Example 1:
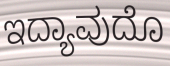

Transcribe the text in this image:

ಇದ್ಯಾವುದೊ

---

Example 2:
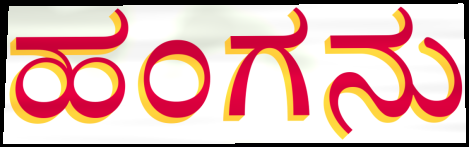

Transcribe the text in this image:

ಹಂಗನು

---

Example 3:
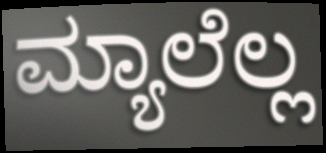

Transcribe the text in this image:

ಮ್ಯಾಲೆಲ್ಲ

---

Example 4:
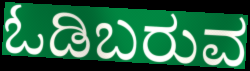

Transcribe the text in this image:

ಓಡಿಬರುವ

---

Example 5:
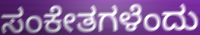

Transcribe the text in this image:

ಸಂಕೇತಗಳೆಂದು